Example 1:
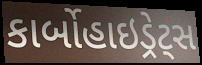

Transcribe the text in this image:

કાર્બોહાઇડ્રેટ્સ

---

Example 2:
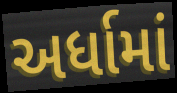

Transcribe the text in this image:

અર્ધામાં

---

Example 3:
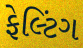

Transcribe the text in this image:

ફેલ્ટિંગ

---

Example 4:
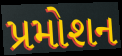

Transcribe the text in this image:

પ્રમોશન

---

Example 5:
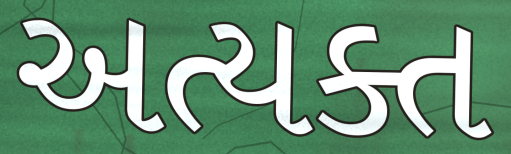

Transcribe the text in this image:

અત્યક્ત